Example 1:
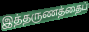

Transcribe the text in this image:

இத்தருணத்தைப்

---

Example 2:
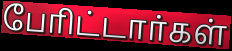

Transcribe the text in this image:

பேரிட்டார்கள்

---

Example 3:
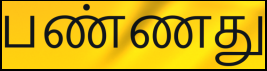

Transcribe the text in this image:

பண்ணது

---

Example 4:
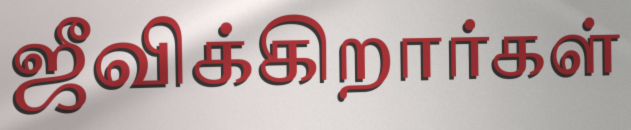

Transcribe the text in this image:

ஜீவிக்கிறார்கள்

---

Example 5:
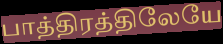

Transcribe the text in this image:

பாத்திரத்திலேயே